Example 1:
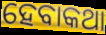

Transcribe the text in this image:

ହେବାକଥା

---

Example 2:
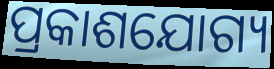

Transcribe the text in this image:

ପ୍ରକାଶଯୋଗ୍ୟ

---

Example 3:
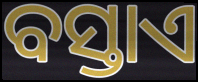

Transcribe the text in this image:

ବସ୍ତାଏ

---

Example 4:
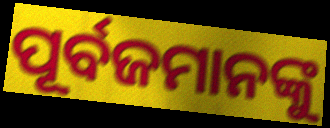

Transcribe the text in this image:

ପୂର୍ବଜମାନଙ୍କୁ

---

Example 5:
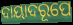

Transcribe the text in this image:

ଦାୟାଦରୂପେ